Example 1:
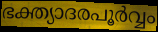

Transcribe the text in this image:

ഭക്ത്യാദരപൂർവ്വം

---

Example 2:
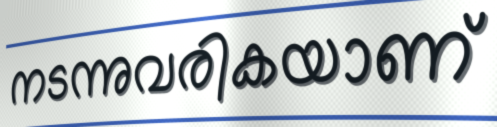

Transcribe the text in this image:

നടന്നുവരികയാണ്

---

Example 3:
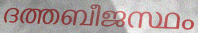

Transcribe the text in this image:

ദത്തബീജസ്ഥം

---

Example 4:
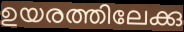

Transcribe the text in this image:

ഉയരത്തിലേക്കു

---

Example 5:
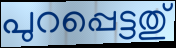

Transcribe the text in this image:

പുറപ്പെട്ടതു്